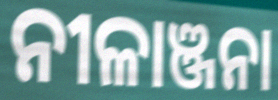
ନୀଳାଞ୍ଜନା